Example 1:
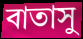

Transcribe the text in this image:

বাতাসু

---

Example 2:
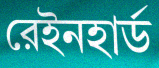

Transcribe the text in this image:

রেইনহার্ড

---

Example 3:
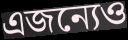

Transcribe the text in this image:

এজন্যেও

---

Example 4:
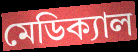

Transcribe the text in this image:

মেডিক্যাল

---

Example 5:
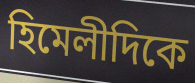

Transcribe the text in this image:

হিমেলীদিকে